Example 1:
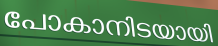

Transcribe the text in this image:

പോകാനിടയായി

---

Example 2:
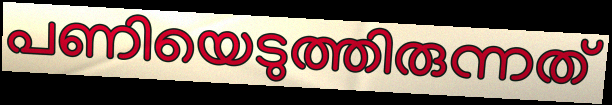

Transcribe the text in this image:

പണിയെടുത്തിരുന്നത്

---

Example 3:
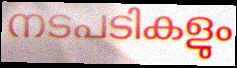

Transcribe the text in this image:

നടപടികളും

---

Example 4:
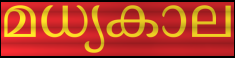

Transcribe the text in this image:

മധ്യകാല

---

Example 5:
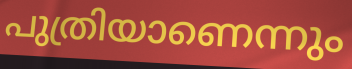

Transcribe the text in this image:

പുത്രിയാണെന്നും